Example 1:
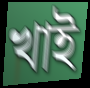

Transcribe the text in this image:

খাই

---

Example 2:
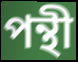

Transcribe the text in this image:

পন্থী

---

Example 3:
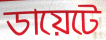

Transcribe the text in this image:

ডায়েটে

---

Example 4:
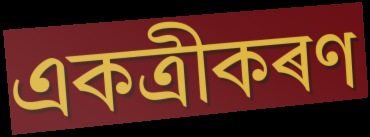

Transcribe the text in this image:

একত্ৰীকৰণ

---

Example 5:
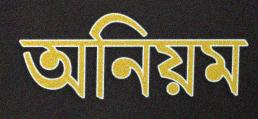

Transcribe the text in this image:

অনিয়ম